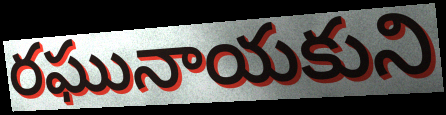
రఘునాయకుని